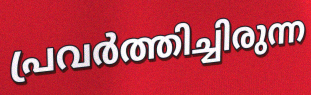
പ്രവർത്തിച്ചിരുന്ന